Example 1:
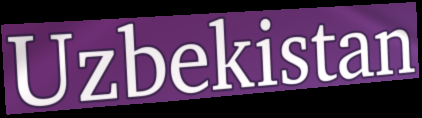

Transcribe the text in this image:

Uzbekistan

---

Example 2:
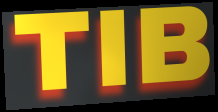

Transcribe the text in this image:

TIB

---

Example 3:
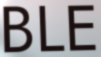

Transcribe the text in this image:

BLE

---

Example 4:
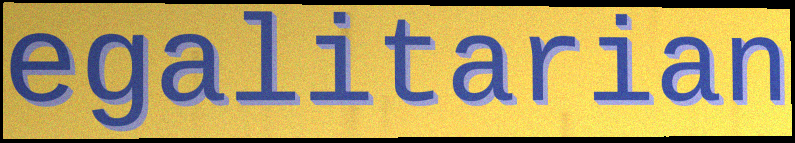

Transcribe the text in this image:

egalitarian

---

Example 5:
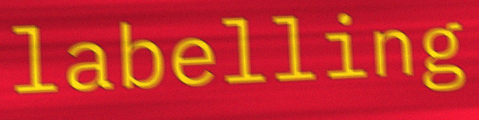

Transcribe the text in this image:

labelling